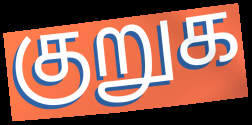
குறுக